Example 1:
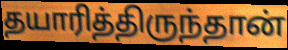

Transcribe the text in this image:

தயாரித்திருந்தான்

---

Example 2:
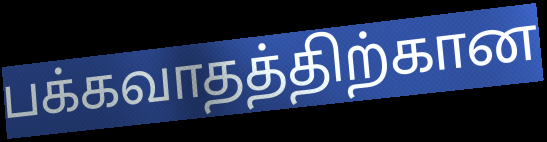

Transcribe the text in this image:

பக்கவாதத்திற்கான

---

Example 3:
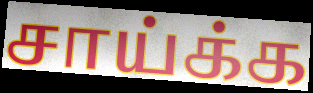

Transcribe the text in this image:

சாய்க்க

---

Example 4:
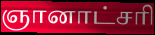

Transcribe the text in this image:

ஞானாட்சரி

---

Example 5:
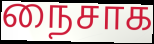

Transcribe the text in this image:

நைசாக